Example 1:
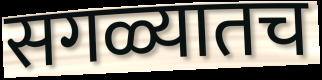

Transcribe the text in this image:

सगळ्यातच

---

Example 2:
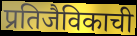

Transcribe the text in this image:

प्रतिजैविकाची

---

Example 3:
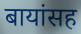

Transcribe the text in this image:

बायांसह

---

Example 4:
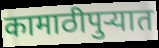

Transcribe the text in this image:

कामाठीपुर्‍यात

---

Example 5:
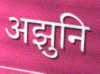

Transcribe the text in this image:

अझुनि